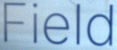
Field